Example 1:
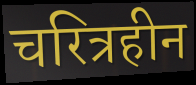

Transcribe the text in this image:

चरित्रहीन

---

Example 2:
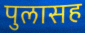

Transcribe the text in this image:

पुलासह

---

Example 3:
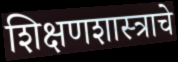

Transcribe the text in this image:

शिक्षणशास्त्राचे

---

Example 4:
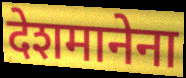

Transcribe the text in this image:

देशमानेना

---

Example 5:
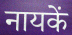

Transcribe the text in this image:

नायकें